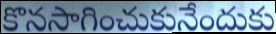
కొనసాగించుకునేందుకు